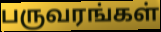
பருவரங்கள்